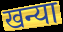
खन्या